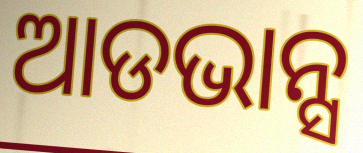
ଆଡଭାନ୍ସ